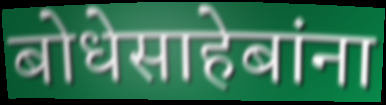
बोधेसाहेबांना